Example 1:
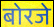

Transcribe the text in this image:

बोरजे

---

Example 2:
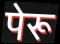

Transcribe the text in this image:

पेरू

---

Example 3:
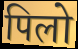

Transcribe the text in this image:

पिलो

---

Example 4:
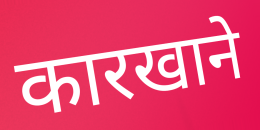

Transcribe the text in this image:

कारखाने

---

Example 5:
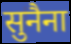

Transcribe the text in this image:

सुनैना